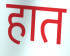
हात